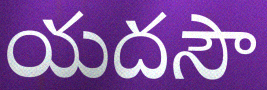
యదసౌ